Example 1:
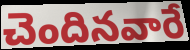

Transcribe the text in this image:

చెందినవారే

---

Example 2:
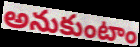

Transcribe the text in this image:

అనుకుంటాం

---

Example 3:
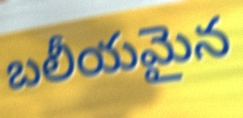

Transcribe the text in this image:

బలీయమైన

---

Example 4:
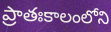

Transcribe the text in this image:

ప్రాతఃకాలంలోని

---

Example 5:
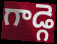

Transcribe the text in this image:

గాడ్గె